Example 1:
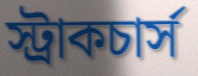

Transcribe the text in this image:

স্ট্রাকচার্স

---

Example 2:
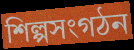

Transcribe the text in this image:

শিল্পসংগঠন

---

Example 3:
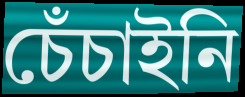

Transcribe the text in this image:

চেঁচাইনি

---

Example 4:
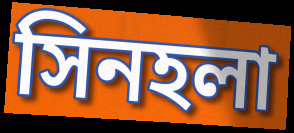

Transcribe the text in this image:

সিনহলা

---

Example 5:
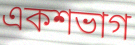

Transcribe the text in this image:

একশভাগ